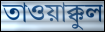
তাওয়াক্কুল